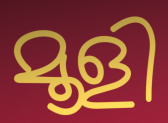
മൂളി